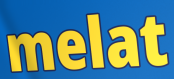
melat